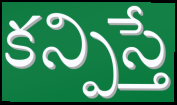
కన్పిస్తే